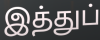
இத்துப்